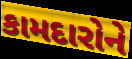
કામદારોને